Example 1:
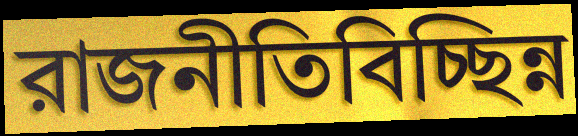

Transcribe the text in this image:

রাজনীতিবিচ্ছিন্ন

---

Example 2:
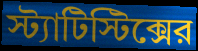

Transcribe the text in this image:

স্ট্যাটিস্টিক্সের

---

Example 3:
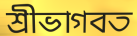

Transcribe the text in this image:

শ্রীভাগবত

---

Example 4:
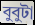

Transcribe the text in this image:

বুবুটা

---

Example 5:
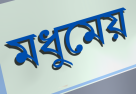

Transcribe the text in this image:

মধুমেয়